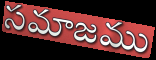
సమాజము